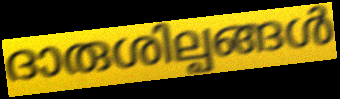
ദാരുശില്പങ്ങൾ